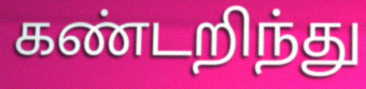
கண்டறிந்து